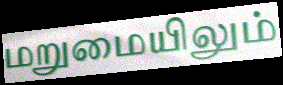
மறுமையிலும்